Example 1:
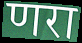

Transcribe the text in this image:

णरा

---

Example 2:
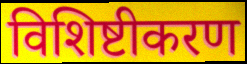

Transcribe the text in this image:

विशिष्टीकरण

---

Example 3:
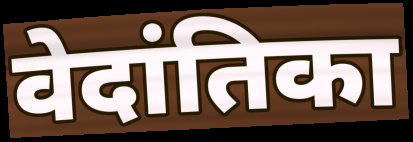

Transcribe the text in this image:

वेदांतिका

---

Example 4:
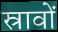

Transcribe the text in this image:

स्रावों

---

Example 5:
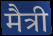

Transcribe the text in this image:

मैत्री